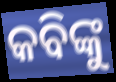
କବିଙ୍କୁ